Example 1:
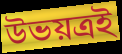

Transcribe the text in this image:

উভয়ত্রই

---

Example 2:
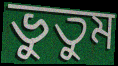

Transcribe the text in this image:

ভুতুম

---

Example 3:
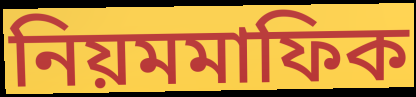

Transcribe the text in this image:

নিয়মমাফিক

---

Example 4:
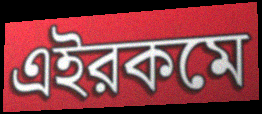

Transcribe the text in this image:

এইরকমে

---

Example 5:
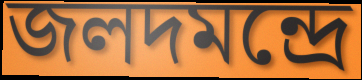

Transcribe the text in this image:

জলদমন্দ্রে